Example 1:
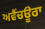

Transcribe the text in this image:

ਅਵੈਂਚਊਰਾ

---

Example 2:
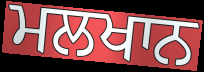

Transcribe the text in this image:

ਮਲਖਾਨ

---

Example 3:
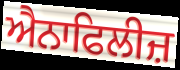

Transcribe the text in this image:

ਐਨਾਫਿਲੀਜ਼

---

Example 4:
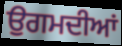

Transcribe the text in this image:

ਉਗਮਦੀਆਂ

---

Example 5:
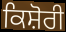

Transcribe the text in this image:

ਕਿਸ਼ੋਰੀ